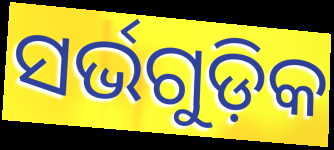
ସର୍ଭଗୁଡ଼ିକ